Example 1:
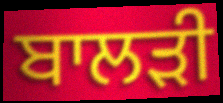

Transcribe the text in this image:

ਬਾਲੜੀ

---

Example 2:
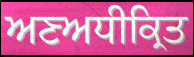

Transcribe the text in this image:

ਅਣਅਧੀਕ੍ਰਿਤ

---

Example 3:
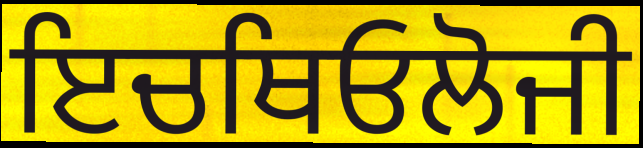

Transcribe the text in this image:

ਇਚਥਿਓਲੋਜੀ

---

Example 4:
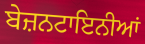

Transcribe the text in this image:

ਬੇਜ਼ਨਟਾਇਨੀਆਂ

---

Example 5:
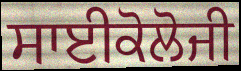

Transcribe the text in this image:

ਸਾਈਕੋਲੋਜੀ